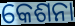
କେଶନା